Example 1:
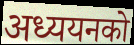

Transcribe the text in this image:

अध्ययनको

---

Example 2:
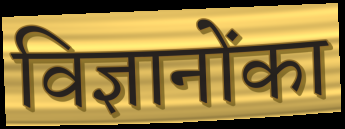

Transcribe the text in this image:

विज्ञानोंका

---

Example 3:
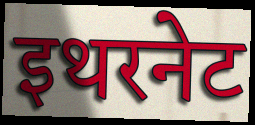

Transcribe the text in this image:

इथरनेट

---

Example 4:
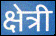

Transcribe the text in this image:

क्षेत्री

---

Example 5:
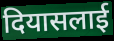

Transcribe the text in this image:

दियासलाई